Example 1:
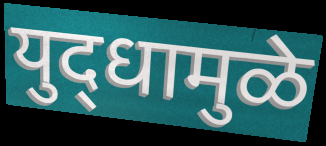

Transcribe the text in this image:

युद्धामुळे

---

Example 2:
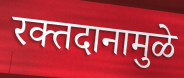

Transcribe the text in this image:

रक्तदानामुळे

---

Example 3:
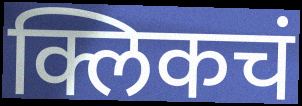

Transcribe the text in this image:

क्लिकचं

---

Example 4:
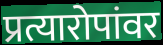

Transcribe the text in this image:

प्रत्यारोपांवर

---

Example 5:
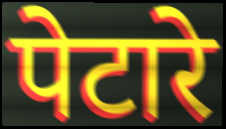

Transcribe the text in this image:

पेटारे